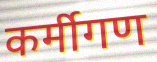
कर्मीगण